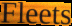
Fleets